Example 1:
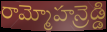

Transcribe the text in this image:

రామ్మోహన్రెడ్డి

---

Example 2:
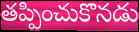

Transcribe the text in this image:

తప్పించుకొనడు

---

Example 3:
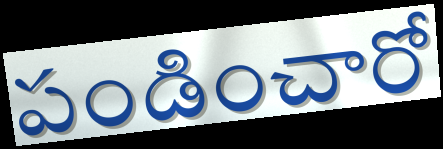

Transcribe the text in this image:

పండించారో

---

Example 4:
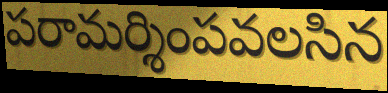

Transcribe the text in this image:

పరామర్శింపవలసిన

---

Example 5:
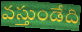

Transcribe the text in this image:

వస్తుండేది